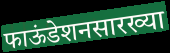
फाऊंडेशनसारख्या